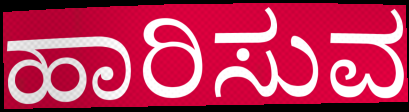
ಹಾರಿಸುವ